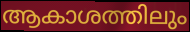
ആകാശത്തിലും